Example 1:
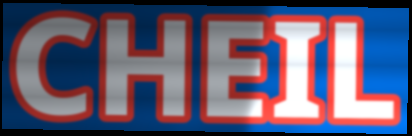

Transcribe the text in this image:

CHEIL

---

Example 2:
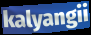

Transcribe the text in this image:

kalyangii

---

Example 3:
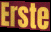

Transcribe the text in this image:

Erste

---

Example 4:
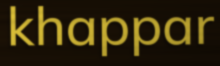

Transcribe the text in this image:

khappar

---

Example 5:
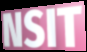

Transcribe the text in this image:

NSIT